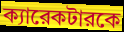
ক্যারেকটারকে